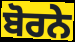
ਬੋਰਨੇ